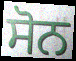
ਸੋਨ